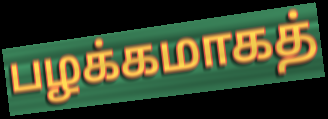
பழக்கமாகத்